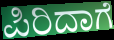
ಪಿರಿದಾಗೆ